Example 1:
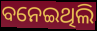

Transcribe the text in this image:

ବନେଇଥିଲି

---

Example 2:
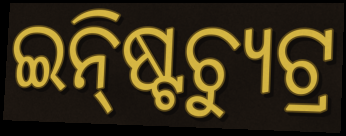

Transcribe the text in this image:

ଇନ୍ଷ୍ଟିଚ୍ୟୁଟ୍ର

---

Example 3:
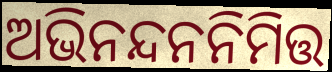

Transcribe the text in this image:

ଅଭିନନ୍ଦନନିମିତ୍ତ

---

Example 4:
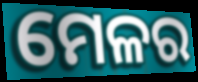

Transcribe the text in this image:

ମେଳର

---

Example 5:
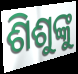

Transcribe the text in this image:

ଶିଶୁଙ୍କୁ